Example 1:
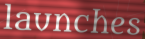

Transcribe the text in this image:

launches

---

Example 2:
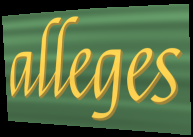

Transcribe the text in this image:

alleges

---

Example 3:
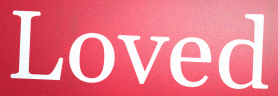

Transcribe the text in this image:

Loved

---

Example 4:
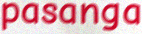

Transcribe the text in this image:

pasanga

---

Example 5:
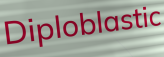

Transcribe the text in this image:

Diploblastic